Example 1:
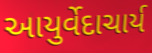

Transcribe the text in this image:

આયુર્વેદાચાર્ય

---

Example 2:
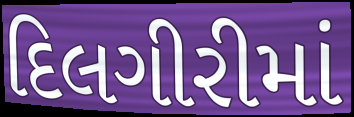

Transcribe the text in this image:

દિલગીરીમાં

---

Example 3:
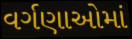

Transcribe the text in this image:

વર્ગણાઓમાં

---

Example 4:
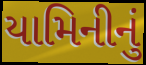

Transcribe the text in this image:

યામિનીનું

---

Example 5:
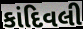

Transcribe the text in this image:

કાંદિવલી